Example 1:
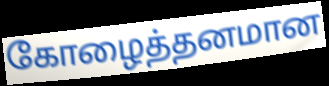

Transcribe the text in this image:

கோழைத்தனமான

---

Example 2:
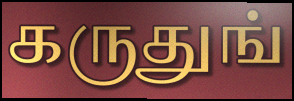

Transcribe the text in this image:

கருதுங்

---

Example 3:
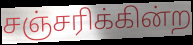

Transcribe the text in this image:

சஞ்சரிக்கின்ற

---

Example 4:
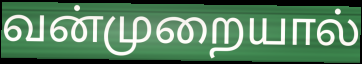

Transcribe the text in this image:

வன்முறையால்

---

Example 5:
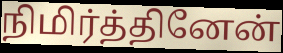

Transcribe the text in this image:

நிமிர்த்தினேன்